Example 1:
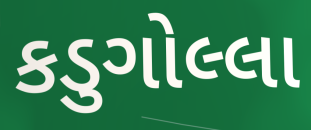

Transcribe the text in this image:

કડુગોલ્લા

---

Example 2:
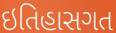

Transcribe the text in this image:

ઇતિહાસગત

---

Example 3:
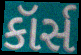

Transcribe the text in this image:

કૉર્સ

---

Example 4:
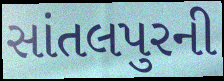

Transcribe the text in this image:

સાંતલપુરની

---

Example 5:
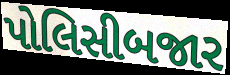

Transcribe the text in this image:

પોલિસીબજાર